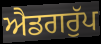
ਐਡਗਰੁੱਪ